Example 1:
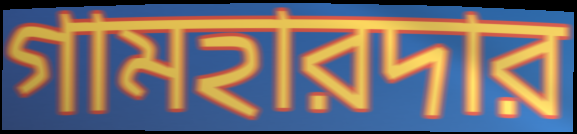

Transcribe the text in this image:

গামহারদার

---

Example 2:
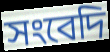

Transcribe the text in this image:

সংবেদি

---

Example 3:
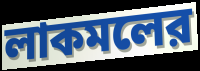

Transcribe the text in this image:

লাকমলের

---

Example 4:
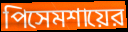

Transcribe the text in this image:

পিসেমশায়ের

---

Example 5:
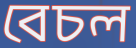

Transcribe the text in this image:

বেচল